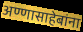
अण्णासाहेबांना